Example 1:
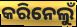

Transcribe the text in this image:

କରିନେଲୁଁ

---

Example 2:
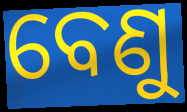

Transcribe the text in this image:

ବେଣୁ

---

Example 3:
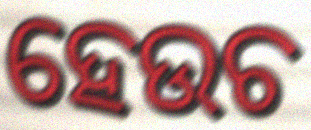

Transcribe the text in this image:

ହେଉଚ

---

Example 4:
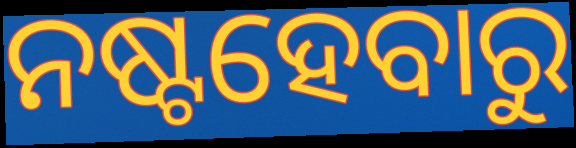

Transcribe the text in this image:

ନଷ୍ଟହେବାରୁ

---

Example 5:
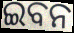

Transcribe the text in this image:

ଇବନ